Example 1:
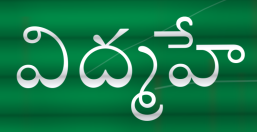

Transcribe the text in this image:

విద్మహే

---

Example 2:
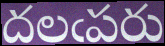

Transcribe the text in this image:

దలఁపరు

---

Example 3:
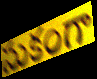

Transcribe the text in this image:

సుకంగా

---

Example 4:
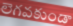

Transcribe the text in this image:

లెగవకుండా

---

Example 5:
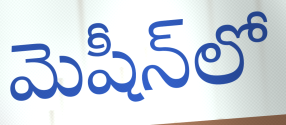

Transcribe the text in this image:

మెషీన్‌లో